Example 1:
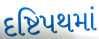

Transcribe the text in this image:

દષ્ટિપથમાં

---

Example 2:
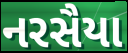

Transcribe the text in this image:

નરસૈયા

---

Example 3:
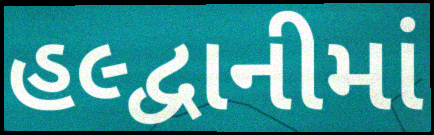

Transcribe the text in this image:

હલ્દ્વાનીમાં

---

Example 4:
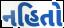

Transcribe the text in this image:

નહિતો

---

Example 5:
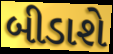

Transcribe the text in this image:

બીડાશે